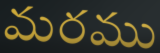
మరము